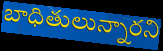
బాధితులున్నారని